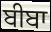
ਬੀਬਾ